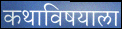
कथाविषयाला